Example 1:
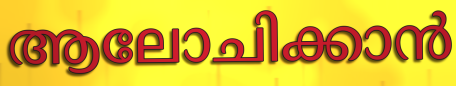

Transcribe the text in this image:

ആലോചിക്കാൻ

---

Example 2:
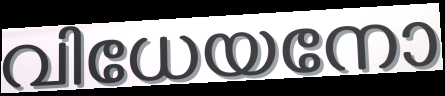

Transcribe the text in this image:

വിധേയനോ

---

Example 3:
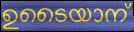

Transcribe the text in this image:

ഉടൈയാന്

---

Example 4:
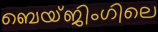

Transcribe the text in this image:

ബെയ്ജിംഗിലെ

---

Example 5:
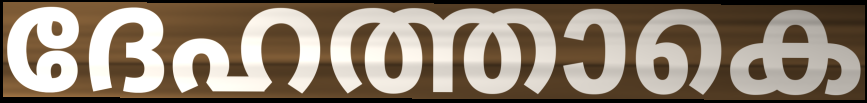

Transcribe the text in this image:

ദേഹത്താകെ